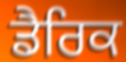
ਡੈਰਿਕ